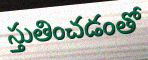
స్తుతించడంతో